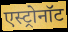
एस्‍ट्रोनॉट